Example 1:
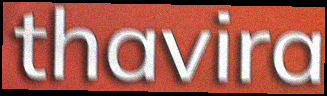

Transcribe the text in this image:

thavira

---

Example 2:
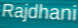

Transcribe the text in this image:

Rajdhani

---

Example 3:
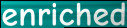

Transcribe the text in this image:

enriched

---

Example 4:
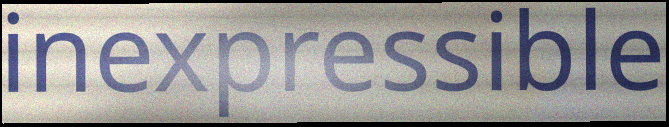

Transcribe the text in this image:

inexpressible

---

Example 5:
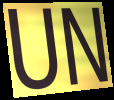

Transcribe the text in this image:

UN